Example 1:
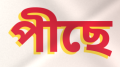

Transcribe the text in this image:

পীছে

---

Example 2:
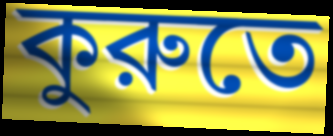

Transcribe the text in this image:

কুরুতে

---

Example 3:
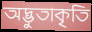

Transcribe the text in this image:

অদ্ভুতাকৃতি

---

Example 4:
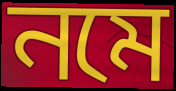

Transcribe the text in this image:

নমে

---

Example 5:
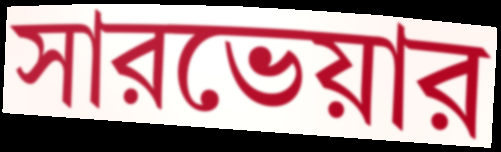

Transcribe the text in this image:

সারভেয়ার